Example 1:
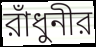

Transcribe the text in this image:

রাঁধুনীর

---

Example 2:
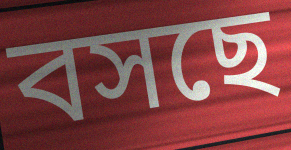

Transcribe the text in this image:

বসছে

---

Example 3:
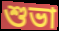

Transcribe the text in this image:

শুভা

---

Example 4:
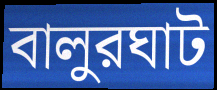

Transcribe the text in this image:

বালুরঘাট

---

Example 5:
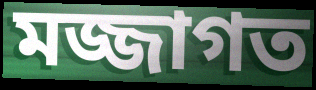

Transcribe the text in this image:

মজ্জাগত